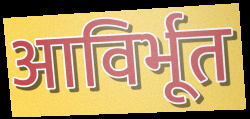
आविर्भूत